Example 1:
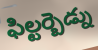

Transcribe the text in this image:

ఫిల్టర్బెడ్ను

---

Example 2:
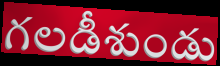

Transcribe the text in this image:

గలడీశుండు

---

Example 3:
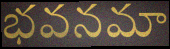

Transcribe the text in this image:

భవనమా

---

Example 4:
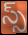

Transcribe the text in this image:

స్స్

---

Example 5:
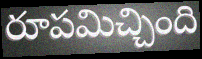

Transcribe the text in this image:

రూపమిచ్చింది